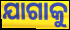
ଯାଗାକୁ